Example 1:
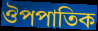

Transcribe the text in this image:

ঔপপাতিক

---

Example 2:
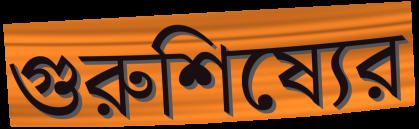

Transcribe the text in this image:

গুরুশিষ্যের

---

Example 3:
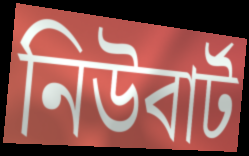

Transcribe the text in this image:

নিউবার্ট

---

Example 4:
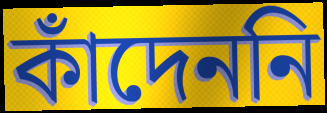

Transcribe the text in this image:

কাঁদেননি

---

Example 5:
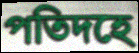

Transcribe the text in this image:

পতিদহে